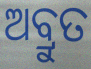
ଅବ୍ରୁତ